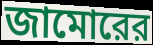
জামোরের